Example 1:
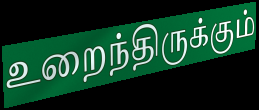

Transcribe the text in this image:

உறைந்திருக்கும்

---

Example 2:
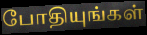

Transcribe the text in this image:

போதியுங்கள்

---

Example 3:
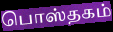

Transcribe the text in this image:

பொஸ்தகம்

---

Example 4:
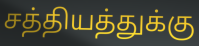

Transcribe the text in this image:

சத்தியத்துக்கு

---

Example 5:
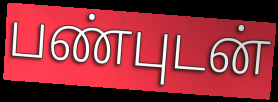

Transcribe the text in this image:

பண்புடன்